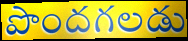
పొందగలడు